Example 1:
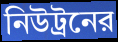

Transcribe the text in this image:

নিউট্রনের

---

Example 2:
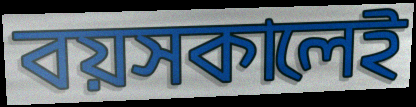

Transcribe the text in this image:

বয়সকালেই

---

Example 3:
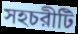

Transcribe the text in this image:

সহচরীটি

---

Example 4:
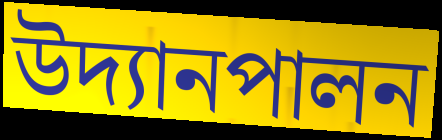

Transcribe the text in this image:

উদ্যানপালন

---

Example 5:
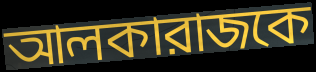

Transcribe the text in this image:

আলকারাজকে